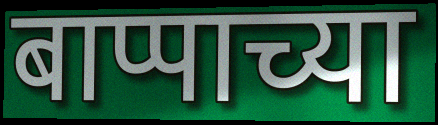
बाप्पाच्या